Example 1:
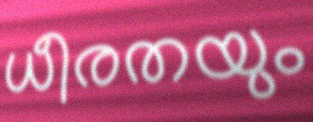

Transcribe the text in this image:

ധീരതയും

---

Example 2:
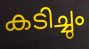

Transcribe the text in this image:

കടിച്ചും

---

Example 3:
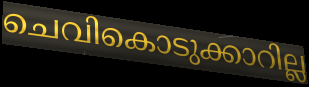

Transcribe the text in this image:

ചെവികൊടുക്കാറില്ല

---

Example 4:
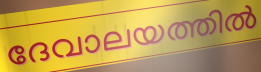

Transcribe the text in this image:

ദേവാലയത്തിൽ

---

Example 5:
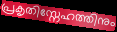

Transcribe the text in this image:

പ്രകൃതിസ്നേഹത്തിനും